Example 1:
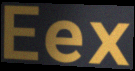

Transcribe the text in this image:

Eex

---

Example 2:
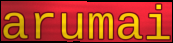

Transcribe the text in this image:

arumai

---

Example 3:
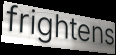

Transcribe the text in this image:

frightens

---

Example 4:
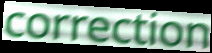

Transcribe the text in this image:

correction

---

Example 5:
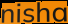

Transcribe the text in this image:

nisha